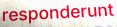
responderunt